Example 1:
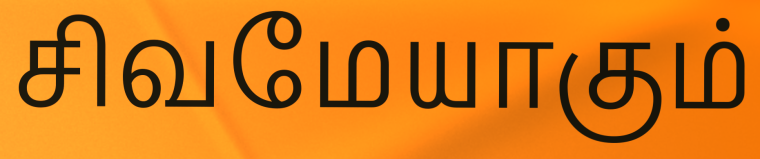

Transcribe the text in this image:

சிவமேயாகும்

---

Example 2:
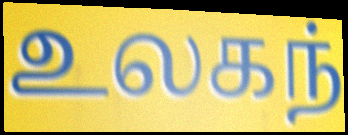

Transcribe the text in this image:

உலகந்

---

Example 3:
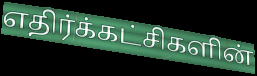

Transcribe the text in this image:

எதிர்க்கட்சிகளின்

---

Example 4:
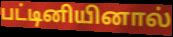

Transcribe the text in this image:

பட்டினியினால்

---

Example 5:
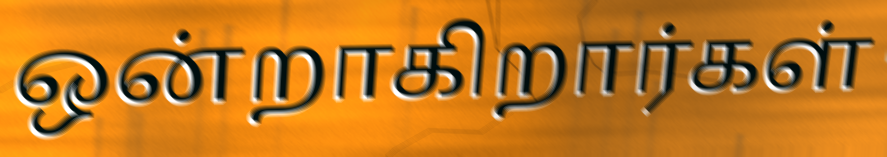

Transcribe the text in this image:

ஒன்றாகிறார்கள்